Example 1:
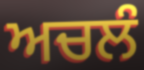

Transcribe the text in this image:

ਅਚਲੰ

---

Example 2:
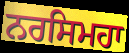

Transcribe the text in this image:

ਨਰਸਿਮਹਾ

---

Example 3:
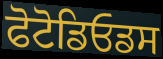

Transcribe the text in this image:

ਫੋਟੋਡਿਓਡਸ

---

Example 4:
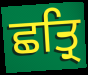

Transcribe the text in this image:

ਛਤ੍ਰਿ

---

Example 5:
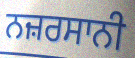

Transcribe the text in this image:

ਨਜ਼ਰਸਾਨੀ